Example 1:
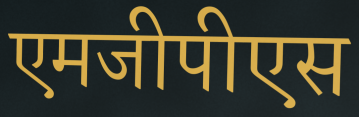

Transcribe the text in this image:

एमजीपीएस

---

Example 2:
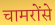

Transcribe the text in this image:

चामरोंसे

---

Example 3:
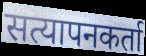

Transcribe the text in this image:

सत्यापनकर्ता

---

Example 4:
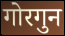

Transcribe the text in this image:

गोरगुन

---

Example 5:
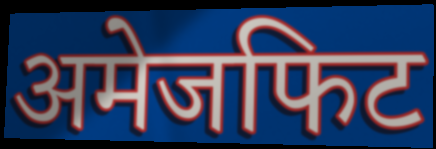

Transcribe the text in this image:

अमेजफिट